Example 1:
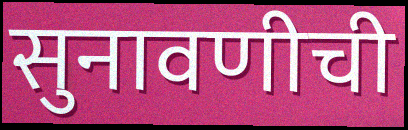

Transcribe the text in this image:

सुनावणीची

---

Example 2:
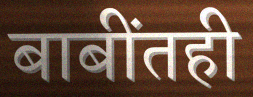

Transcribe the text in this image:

बाबींतही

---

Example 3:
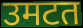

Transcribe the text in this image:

उमटत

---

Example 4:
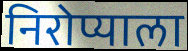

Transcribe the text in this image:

निरोप्याला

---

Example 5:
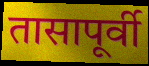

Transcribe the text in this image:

तासापूर्वी